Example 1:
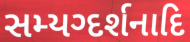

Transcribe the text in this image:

સમ્યગ્દર્શનાદિ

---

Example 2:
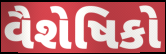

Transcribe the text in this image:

વૈશેષિકો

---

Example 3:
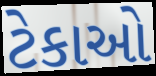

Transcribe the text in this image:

ટેકાઓ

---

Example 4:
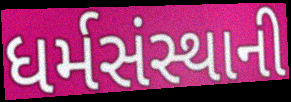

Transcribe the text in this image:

ધર્મસંસ્થાની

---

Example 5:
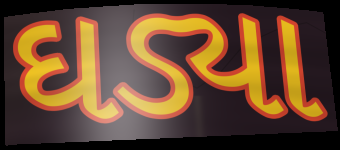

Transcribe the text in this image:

ઘડ્યા